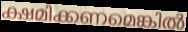
ക്ഷമിക്കണമെങ്കിൽ